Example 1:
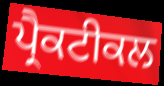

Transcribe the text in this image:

ਪ੍ਰੈਕਟੀਕਲ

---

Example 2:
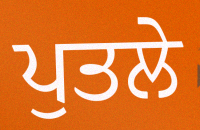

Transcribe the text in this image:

ਪੁਤਲੇ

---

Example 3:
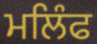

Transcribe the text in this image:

ਮਲਿੰਫ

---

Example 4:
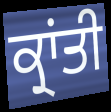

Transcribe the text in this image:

ਕ੍ਰਾਂਤੀ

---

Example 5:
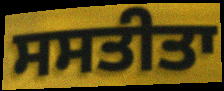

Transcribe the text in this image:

ਸਸਤੀਤਾ